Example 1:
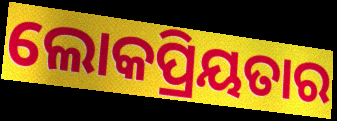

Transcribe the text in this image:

ଲୋକପ୍ରିୟତାର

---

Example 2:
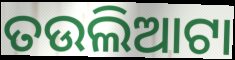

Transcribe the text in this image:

ତଉଲିଆଟା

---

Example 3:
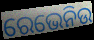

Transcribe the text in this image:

ରେଭେନିଉ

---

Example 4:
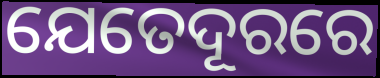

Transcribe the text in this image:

ଯେତେଦୂରରେ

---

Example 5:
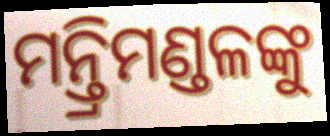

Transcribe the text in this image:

ମନ୍ତ୍ରିମଣ୍ଡଳଙ୍କୁ